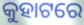
କୁହାଟରେ